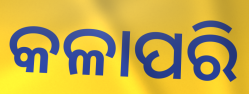
କଳାପରି